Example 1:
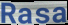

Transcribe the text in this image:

Rasa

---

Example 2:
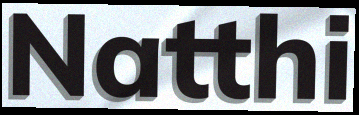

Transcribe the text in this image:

Natthi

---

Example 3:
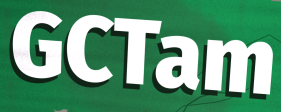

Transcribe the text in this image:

GCTam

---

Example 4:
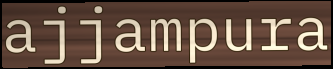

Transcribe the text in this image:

ajjampura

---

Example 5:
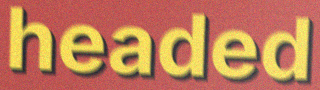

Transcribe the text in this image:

headed